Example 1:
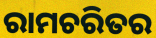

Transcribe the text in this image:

ରାମଚରିତର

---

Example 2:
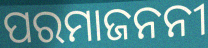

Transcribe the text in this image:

ପରମାଜନନୀ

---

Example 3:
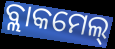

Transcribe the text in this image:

ବ୍ଲାକମେଲ୍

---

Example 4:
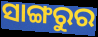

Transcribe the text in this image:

ସାଙ୍ଗରୁର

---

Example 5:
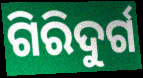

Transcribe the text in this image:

ଗିରିଦୁର୍ଗ